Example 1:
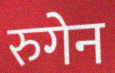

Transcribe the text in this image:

रुगेन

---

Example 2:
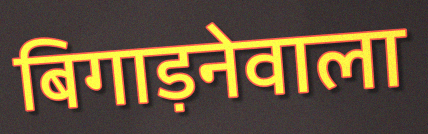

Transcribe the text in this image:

बिगाड़नेवाला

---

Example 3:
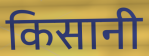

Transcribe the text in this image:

किसानी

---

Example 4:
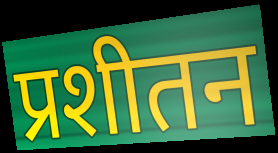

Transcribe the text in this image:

प्रशीतन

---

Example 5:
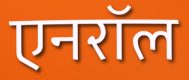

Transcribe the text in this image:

एनरॉल